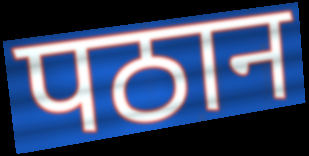
पठान